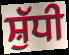
ਸ਼ੁੱਧੀ